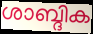
ശാബ്ദിക